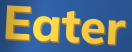
Eater